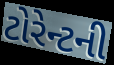
ટોરેન્ટની